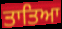
ਤਾਤਿਆ